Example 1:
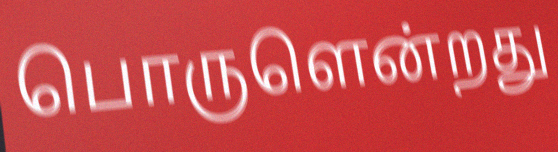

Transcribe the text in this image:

பொருளென்றது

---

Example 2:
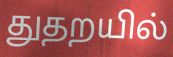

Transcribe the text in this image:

துதறயில்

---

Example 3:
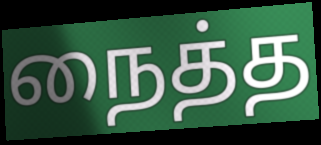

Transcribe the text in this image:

நைத்த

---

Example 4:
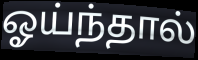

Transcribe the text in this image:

ஓய்ந்தால்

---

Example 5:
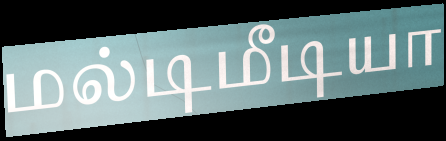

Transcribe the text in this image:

மல்டிமீடியா